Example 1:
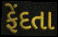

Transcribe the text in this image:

ફેંદતા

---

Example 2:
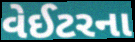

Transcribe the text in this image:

વેઈટરના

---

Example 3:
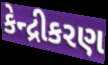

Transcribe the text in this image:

કેન્દ્રીકરણ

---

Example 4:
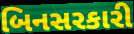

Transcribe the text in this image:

બિનસરકારી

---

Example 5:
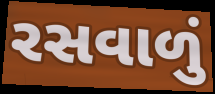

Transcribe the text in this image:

રસવાળું